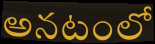
అనటంలో